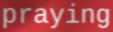
praying